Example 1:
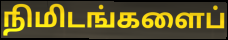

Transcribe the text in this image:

நிமிடங்களைப்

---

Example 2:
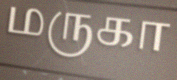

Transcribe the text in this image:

மருகா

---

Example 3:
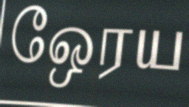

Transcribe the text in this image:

ஒேரய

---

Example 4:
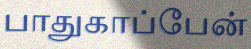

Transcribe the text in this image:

பாதுகாப்பேன்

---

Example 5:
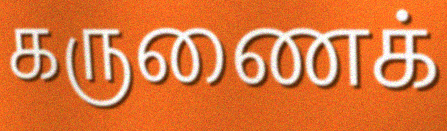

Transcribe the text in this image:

கருணைக்